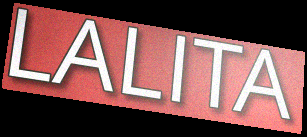
LALITA